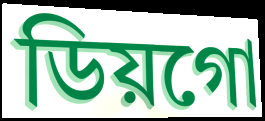
ডিয়গো